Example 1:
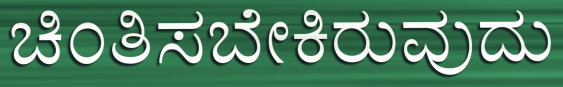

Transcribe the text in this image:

ಚಿಂತಿಸಬೇಕಿರುವುದು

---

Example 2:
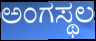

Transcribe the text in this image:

ಅಂಗಸ್ಥಲ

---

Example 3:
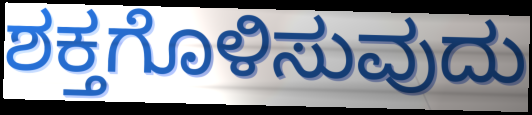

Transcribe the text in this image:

ಶಕ್ತಗೊಳಿಸುವುದು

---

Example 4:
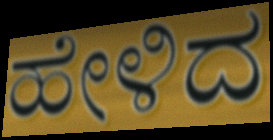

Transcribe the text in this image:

ಹೇಳಿದ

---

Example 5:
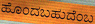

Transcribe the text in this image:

ಹೊಂದಬಹುದೆಂಬ